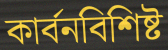
কার্বনবিশিষ্ট